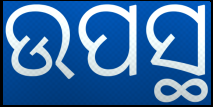
ଉପସ୍ଥ